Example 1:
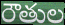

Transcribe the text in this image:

రౌతుల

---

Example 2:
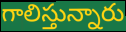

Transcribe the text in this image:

గాలిస్తున్నారు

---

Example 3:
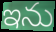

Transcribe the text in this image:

ఇను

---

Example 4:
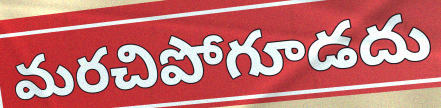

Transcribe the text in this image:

మరచిపోగూడదు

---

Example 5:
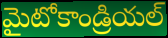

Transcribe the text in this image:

మైటోకాండ్రియల్